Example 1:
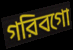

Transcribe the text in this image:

গরিবগো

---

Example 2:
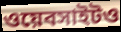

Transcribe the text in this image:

ওয়েবসাইটও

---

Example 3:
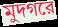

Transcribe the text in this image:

মুদগরে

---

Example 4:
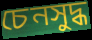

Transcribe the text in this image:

চেনসুদ্ধ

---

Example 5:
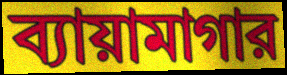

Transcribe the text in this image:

ব্যায়ামাগার